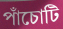
পাঁচোটি